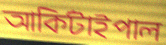
আৰ্কিটাইপাল